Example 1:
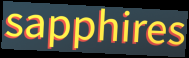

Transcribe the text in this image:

sapphires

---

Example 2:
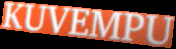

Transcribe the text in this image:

KUVEMPU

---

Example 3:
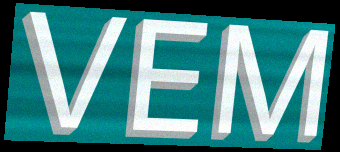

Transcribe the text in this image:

VEM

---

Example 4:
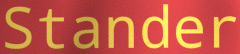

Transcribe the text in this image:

Stander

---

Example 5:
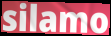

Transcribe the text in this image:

silamo